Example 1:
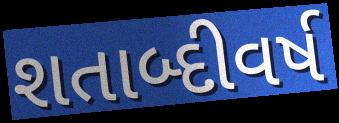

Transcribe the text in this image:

શતાબ્દીવર્ષ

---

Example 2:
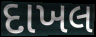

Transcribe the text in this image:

દાખલ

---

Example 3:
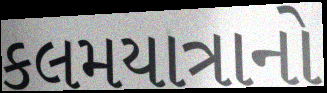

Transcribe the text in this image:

કલમયાત્રાનો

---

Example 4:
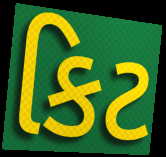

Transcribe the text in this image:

કિટ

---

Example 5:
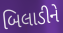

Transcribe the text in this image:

બિલાડીને